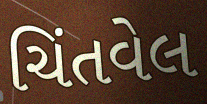
ચિંતવેલ